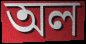
অল